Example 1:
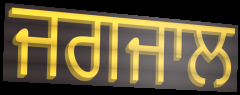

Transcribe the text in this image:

ਜਗਜਾਲ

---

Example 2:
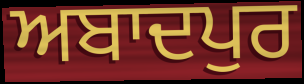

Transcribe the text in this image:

ਅਬਾਦਪੁਰ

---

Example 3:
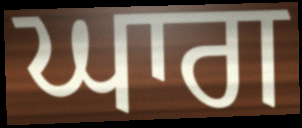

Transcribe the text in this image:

ਘਾਗ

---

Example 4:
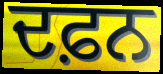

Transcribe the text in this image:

ਦਫ਼ਨ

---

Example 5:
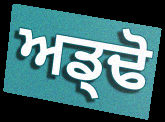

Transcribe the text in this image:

ਅਡ੍ਢੋ